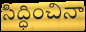
సిద్ధించినా